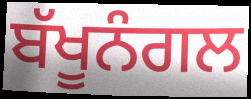
ਬੱਖੂਨੰਗਲ